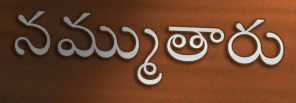
నమ్ముతారు